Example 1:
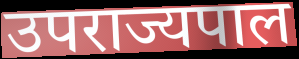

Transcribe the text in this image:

उपराज्यपाल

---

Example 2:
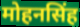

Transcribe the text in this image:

मोहनसिंह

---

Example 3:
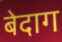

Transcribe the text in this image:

बेदाग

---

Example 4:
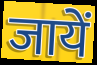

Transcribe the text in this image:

जायें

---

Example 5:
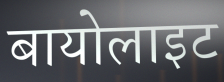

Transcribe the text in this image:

बायोलाइट